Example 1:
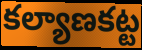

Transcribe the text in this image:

కల్యాణకట్ట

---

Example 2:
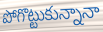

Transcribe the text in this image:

పోగొట్టుకున్నానా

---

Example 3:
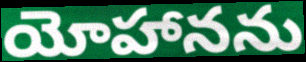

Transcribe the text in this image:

యోహానను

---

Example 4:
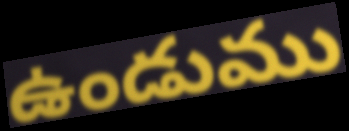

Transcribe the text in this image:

ఉండుము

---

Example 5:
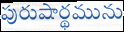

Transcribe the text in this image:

పురుషార్థమును